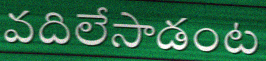
వదిలేసాడంట